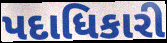
પદાધિકારી